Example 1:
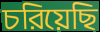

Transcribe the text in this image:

চরিয়েছি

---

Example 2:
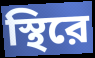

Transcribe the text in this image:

স্থিরে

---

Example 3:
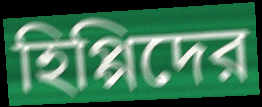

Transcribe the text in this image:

হিপ্পিদের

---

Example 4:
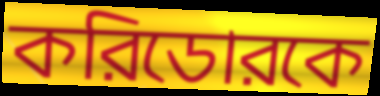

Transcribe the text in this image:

করিডোরকে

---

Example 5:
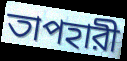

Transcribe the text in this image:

তাপহারী